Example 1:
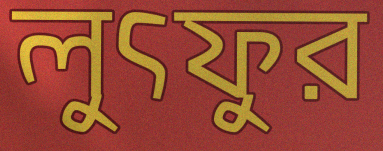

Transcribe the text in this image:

লুৎফুর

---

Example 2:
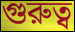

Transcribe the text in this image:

গুরুত্ব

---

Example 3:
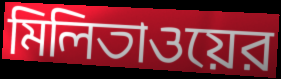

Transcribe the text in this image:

মিলিতাওয়ের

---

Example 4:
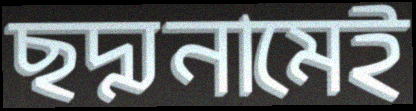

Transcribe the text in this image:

ছদ্মনামেই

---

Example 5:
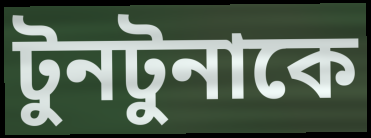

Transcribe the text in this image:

টুনটুনাকে